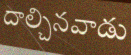
దాల్చినవాడు